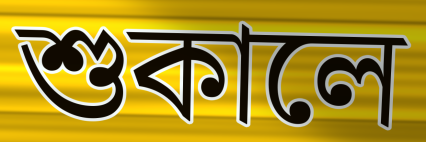
শুকালে